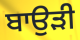
ਬਾਉੜੀ